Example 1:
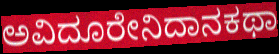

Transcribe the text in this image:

ಅವಿದೂರೇನಿದಾನಕಥಾ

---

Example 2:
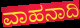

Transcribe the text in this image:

ವಾಹನಾದಿ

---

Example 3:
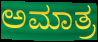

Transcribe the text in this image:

ಅಮಾತ್ರ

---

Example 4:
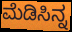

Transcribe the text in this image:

ಮೆಡಿಸಿನ್ನ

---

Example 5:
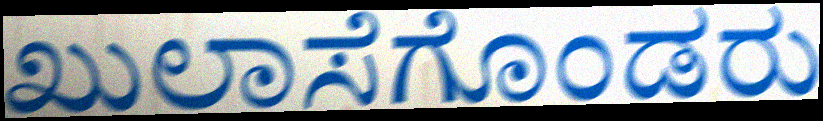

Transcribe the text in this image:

ಖುಲಾಸೆಗೊಂಡರು